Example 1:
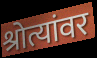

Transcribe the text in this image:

श्रोत्यांवर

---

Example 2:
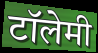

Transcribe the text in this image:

टॉलेमी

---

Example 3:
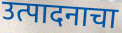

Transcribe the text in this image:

उत्पादनाचा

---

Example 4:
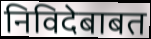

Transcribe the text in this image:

निविदेबाबत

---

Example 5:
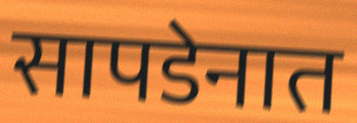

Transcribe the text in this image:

सापडेनात